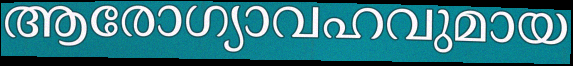
ആരോഗ്യാവഹവുമായ